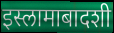
इस्लामाबादशी